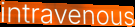
intravenous